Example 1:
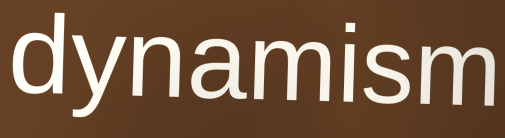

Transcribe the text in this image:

dynamism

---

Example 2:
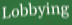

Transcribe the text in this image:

Lobbying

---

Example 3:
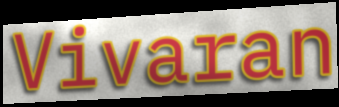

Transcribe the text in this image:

Vivaran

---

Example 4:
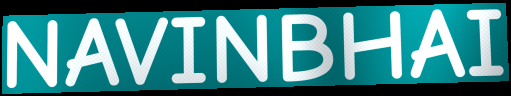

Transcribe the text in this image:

NAVINBHAI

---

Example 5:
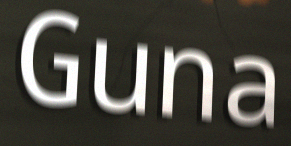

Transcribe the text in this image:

Guna